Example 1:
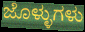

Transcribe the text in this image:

ಜೊಳ್ಳುಗಳು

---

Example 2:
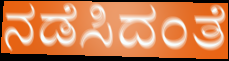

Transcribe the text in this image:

ನಡೆಸಿದಂತೆ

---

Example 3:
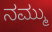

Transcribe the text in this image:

ನಮ್ಮು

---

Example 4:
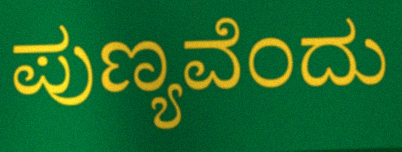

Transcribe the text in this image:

ಪುಣ್ಯವೆಂದು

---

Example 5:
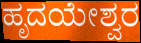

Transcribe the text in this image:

ಹೃದಯೇಶ್ವರ